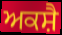
ਅਕਸ਼ੈ